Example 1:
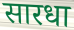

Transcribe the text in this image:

सारधा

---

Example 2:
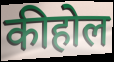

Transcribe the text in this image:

कीहोल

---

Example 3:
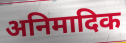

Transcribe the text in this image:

अनिमादिक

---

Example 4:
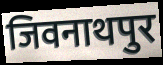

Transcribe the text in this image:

जिवनाथपुर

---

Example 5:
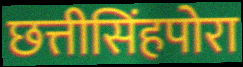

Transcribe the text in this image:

छत्तीसिंहपोरा